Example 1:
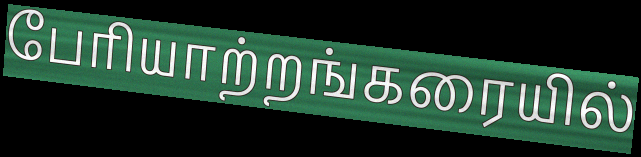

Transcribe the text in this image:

பேரியாற்றங்கரையில்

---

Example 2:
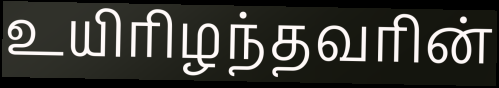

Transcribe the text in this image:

உயிரிழந்தவரின்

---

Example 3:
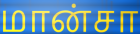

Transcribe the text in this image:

மான்சா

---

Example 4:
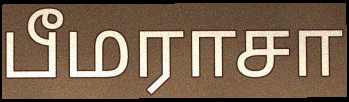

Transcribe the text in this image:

பீமராசா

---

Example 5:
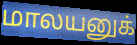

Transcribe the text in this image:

மாலயனுக்